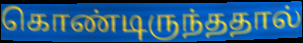
கொண்டிருந்ததால்